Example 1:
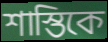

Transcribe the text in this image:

শাস্তিকে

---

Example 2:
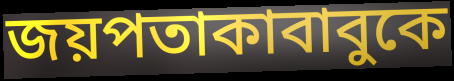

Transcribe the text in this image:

জয়পতাকাবাবুকে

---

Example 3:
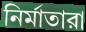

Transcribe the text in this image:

নির্মাতারা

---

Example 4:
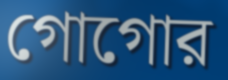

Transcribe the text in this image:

গোগোর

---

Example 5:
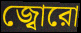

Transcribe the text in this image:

জ্বোরো